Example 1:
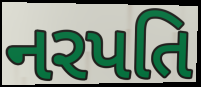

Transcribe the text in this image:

નરપતિ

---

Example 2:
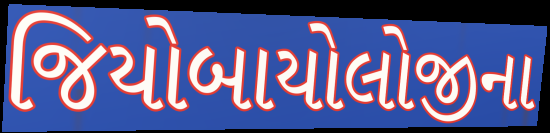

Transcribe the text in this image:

જિયોબાયોલોજીના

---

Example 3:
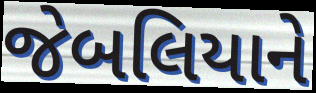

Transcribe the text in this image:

જેબલિયાને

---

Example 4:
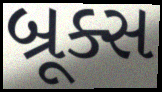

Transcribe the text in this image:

બ્રૂક્સ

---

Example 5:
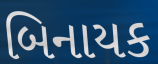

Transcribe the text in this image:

બિનાયક